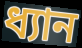
ধ্যান